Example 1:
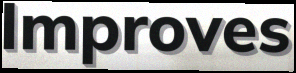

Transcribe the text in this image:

Improves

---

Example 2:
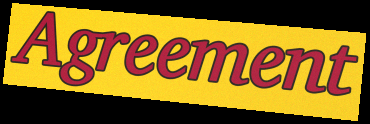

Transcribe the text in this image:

Agreement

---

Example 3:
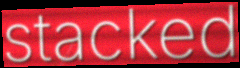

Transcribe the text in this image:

stacked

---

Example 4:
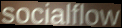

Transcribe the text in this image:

socialflow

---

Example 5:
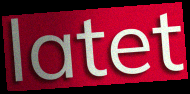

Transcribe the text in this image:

latet